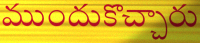
ముందుకొచ్చారు